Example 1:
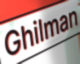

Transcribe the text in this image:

Ghilman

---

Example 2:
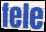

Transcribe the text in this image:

fele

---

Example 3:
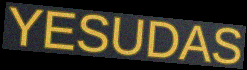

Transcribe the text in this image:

YESUDAS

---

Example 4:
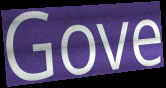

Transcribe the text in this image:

Gove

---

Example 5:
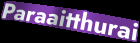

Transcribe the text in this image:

Paraaitthurai